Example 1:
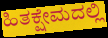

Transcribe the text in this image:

ಹಿತಕ್ಷೇಮದಲ್ಲಿ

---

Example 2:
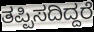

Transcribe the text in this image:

ತಪ್ಪಿಸದಿದ್ದರೆ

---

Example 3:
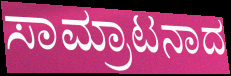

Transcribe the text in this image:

ಸಾಮ್ರಾಟನಾದ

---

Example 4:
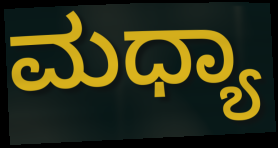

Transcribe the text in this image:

ಮಧ್ಯಾ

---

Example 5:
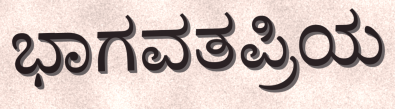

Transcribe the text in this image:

ಭಾಗವತಪ್ರಿಯ